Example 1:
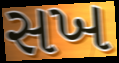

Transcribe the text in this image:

સખ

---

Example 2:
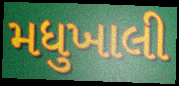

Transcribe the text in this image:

મધુખાલી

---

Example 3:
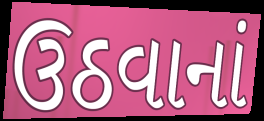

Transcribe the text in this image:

ઉઠવાનાં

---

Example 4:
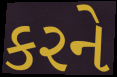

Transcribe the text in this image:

કરને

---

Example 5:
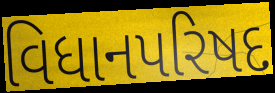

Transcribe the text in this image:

વિધાનપરિષદ